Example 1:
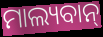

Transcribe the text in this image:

ମାଲ୍ୟବାନ୍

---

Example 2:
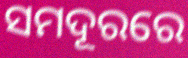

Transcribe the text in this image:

ସମଦୂରରେ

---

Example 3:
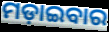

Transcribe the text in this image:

ମଡ଼ାଇବାର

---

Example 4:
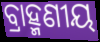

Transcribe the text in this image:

ବ୍ରାହ୍ମଣୀୟ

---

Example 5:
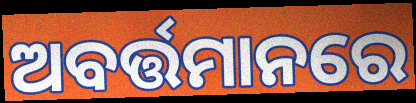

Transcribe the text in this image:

ଅବର୍ତ୍ତମାନରେ